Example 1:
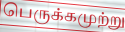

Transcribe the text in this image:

பெருக்கமுற்று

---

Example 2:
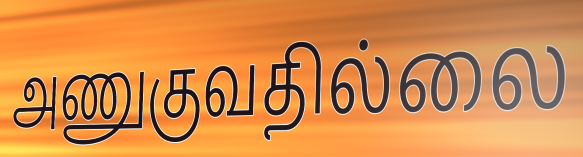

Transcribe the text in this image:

அணுகுவதில்லை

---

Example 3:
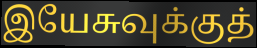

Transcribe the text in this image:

இயேசுவுக்குத்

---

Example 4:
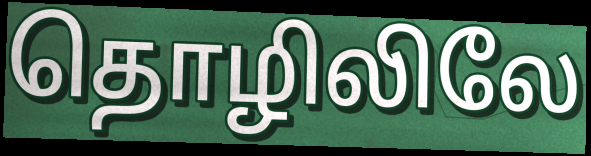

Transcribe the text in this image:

தொழிலிலே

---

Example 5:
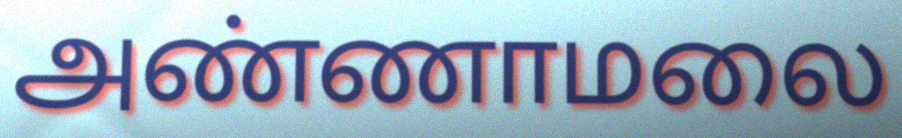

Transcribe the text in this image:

அண்ணாமலை